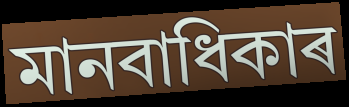
মানবাধিকাৰ